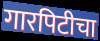
गारपिटीचा